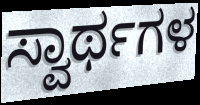
ಸ್ವಾರ್ಥಗಳ